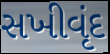
સખીવૃંદ